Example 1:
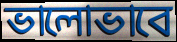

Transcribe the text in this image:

ভালোভাবে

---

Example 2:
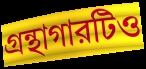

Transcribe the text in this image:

গ্রন্থাগারটিও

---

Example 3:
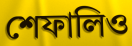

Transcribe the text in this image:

শেফালিও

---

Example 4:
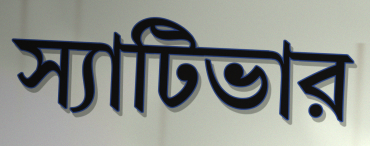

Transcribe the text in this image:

স্যাটিভার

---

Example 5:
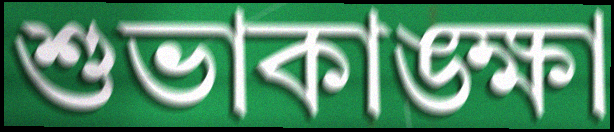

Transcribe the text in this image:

শুভাকাঙ্ক্ষা